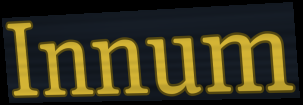
Innum